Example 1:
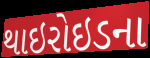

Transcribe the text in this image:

થાઇરોઇડના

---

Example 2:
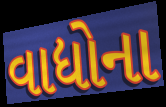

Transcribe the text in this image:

વાદ્યોના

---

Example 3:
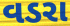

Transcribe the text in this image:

વડરા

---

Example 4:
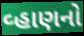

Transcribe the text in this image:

વ્હાણનો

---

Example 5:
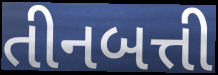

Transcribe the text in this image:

તીનબત્તી